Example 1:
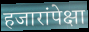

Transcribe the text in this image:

हजारांपेक्षा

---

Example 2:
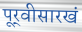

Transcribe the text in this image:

पूर्वीसारखं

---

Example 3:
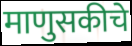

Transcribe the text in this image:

माणुसकीचे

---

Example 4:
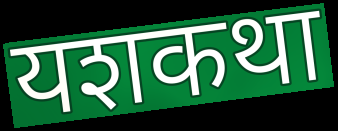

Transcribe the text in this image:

यशकथा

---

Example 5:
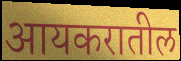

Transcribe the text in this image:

आयकरातील